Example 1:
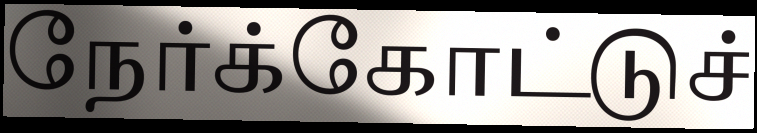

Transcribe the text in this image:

நேர்க்கோட்டுச்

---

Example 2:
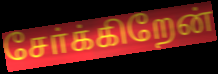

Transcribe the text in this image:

சேர்க்கிறேன்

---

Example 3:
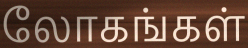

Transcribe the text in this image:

லோகங்கள்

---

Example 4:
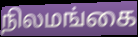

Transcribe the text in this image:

நிலமங்கை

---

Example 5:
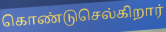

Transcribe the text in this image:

கொண்டுசெல்கிறார்